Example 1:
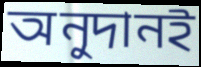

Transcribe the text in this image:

অনুদানই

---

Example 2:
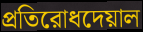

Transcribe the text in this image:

প্রতিরোধদেয়াল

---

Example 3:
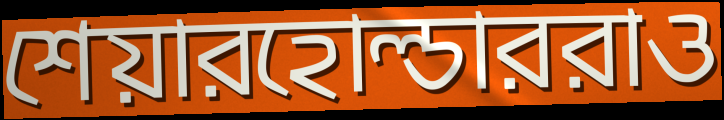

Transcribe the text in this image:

শেয়ারহোল্ডাররাও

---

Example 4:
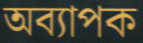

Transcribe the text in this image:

অব্যাপক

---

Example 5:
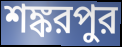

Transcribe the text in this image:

শঙ্করপুর